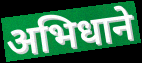
अभिधाने